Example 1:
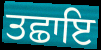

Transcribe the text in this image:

ਤਛਾਇ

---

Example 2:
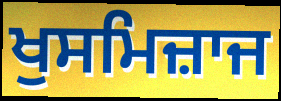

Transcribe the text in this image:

ਖੁਸਮਿਜ਼ਾਜ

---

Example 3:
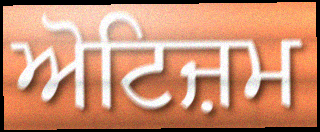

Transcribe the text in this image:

ਅੋਟਿਜ਼ਮ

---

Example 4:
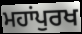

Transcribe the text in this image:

ਮਹਾਂਪੁਰਖ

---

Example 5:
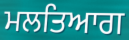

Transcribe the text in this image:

ਮਲਤਿਆਗ